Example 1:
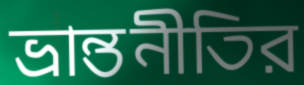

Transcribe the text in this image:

ভ্রান্তনীতির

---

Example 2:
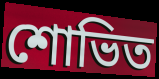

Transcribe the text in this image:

শোভিত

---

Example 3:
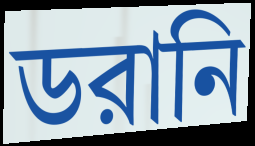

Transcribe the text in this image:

ডরানি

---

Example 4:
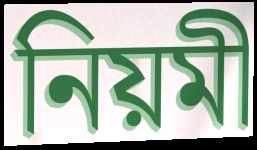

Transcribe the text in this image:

নিয়মী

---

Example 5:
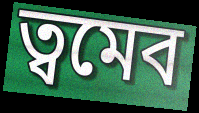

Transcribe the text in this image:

ত্বমেব